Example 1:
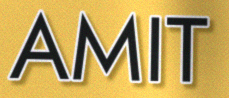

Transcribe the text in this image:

AMIT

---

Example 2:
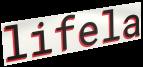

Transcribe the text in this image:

lifela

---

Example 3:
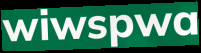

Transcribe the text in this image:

wiwspwa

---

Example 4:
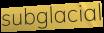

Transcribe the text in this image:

subglacial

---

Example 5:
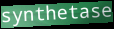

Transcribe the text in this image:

synthetase